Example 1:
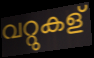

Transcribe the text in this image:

വറ്റുകള്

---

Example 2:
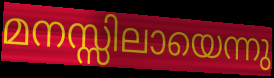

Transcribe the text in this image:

മനസ്സിലായെന്നു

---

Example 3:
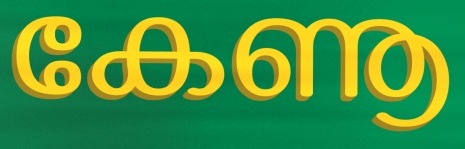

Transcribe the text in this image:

കേണൂ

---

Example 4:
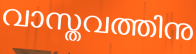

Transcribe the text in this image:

വാസ്തവത്തിനു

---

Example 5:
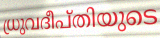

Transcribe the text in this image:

ധ്രുവദീപ്തിയുടെ